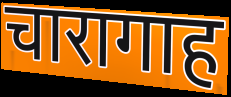
चारागाह